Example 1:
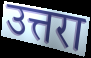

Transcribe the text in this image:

उत्तरा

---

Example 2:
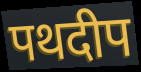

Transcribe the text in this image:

पथदीप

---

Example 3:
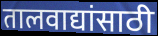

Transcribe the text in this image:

तालवाद्यांसाठी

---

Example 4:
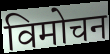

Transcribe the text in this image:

विमोचन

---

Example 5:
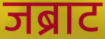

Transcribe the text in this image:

जब्राट